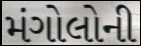
મંગોલોની